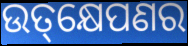
ଉତ୍‌କ୍ଷେପଣର